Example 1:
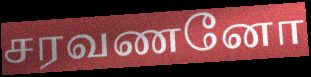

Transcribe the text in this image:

சரவணனோ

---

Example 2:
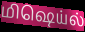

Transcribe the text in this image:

மிஷெய்ல்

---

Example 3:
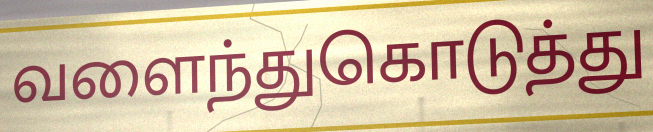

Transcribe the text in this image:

வளைந்துகொடுத்து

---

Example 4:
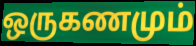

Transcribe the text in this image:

ஒருகணமும்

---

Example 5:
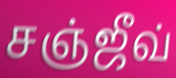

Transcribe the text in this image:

சஞ்ஜீவ்